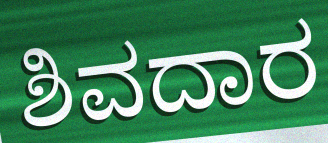
ಶಿವದಾರ